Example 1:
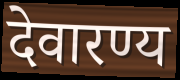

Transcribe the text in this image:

देवारण्य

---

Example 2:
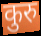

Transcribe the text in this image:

कुरु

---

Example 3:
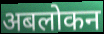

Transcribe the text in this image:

अबलोकन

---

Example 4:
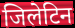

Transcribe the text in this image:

जिलेटिन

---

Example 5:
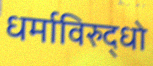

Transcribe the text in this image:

धर्माविरुद्धो